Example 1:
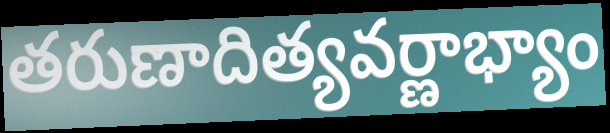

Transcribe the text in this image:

తరుణాదిత్యవర్ణాభ్యాం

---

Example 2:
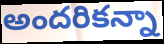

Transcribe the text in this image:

అందరికన్నా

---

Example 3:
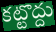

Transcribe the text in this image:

కట్టొద్దు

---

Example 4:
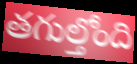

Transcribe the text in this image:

తగుల్తోంది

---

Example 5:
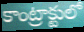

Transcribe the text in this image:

కాంట్రాక్టులో